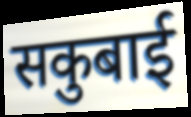
सकुबाई